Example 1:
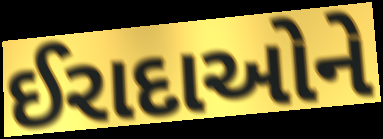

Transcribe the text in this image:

ઈરાદાઓને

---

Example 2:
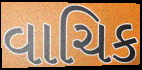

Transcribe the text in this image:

વાચિક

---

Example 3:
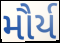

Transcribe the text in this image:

મૌર્ય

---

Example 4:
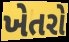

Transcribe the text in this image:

ખેતરો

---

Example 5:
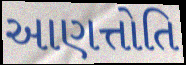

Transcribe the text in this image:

આણત્તોતિ